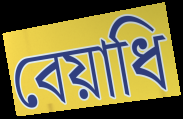
বেয়াধি